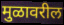
मुळावरील